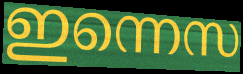
ഇന്നെസ